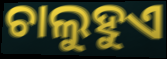
ଚାଲୁହୁଏ